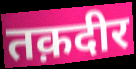
तक़दीर